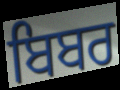
ਬਿਬਰ